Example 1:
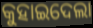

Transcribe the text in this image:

କୁହାଇଦେଲା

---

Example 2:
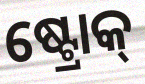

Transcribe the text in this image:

ଷ୍ଟ୍ରୋକ୍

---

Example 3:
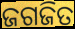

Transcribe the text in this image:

ଜଗଜିତ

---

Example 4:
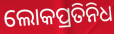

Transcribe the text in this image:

ଲୋକପ୍ରତିନିଧ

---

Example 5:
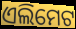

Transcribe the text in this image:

ଏଲିମେଟ